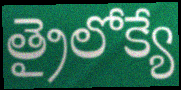
త్రైలోక్యే